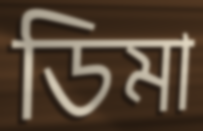
ডিমা